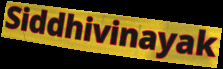
Siddhivinayak